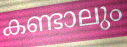
കണ്ടാലും